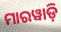
ମାରୱାଡ଼ି